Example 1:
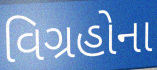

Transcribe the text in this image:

વિગ્રહોના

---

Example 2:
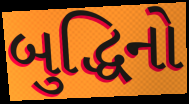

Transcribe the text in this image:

બુદ્ધિનો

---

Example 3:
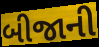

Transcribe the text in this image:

બીજાની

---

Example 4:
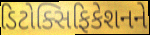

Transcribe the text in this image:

ડિટોક્સિફિકેશનને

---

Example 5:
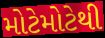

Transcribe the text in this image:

મોટેમોટેથી